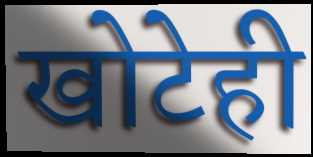
खोटेही